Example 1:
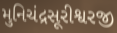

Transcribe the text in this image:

મુનિચંદ્રસૂરીશ્વરજી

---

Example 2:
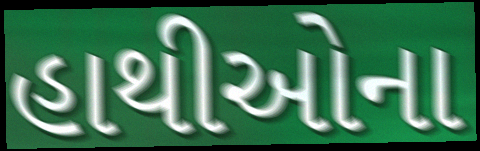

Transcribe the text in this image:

હાથીઓના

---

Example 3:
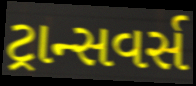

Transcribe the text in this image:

ટ્રાન્સવર્સ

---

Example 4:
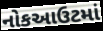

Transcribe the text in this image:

નોકઆઉટમાં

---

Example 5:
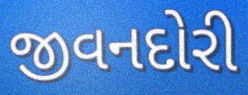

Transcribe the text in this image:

જીવનદોરી